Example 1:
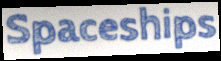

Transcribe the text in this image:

Spaceships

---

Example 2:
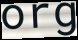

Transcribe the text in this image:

org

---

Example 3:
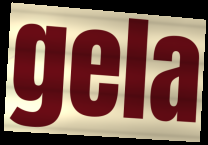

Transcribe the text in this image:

gela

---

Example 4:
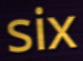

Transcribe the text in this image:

six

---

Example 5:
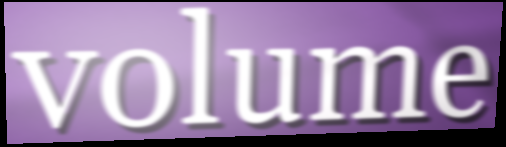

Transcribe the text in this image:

volume